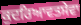
ਕੁਦਰਿਆਵਤਸੇਵਾ